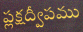
ప్లక్షద్వీపము